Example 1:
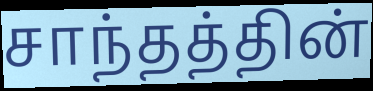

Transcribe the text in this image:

சாந்தத்தின்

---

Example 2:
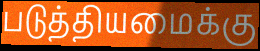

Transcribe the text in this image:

படுத்தியமைக்கு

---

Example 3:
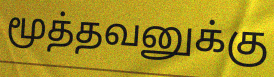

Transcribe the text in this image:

மூத்தவனுக்கு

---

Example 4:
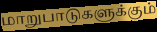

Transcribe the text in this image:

மாறுபாடுகளுக்கும்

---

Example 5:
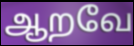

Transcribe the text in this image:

ஆறவே